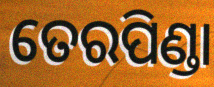
ତେରପିଣ୍ଡା